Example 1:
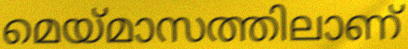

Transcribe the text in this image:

മെയ്മാസത്തിലാണ്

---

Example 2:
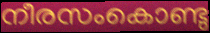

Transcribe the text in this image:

നീരസംകൊണ്ടു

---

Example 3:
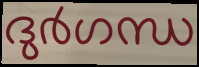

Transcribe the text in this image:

ദുർഗന്ധ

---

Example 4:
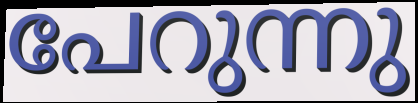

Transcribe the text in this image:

പേറുന്നു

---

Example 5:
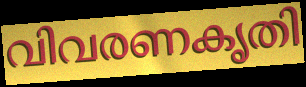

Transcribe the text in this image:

വിവരണകൃതി